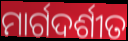
ମାର୍ଗଦର୍ଶୀତ